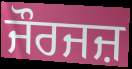
ਜੌਰਜਜ਼